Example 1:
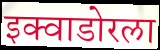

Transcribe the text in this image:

इक्वाडोरला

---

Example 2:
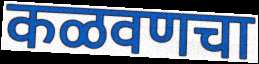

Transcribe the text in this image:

कळवणचा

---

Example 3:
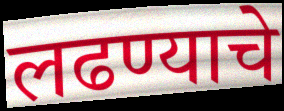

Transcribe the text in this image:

लढण्याचे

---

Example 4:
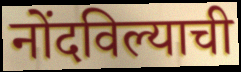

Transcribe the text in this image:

नोंदविल्याची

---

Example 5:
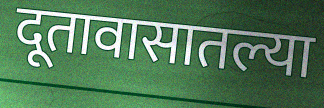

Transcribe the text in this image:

दूतावासातल्या